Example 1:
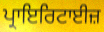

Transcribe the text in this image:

ਪ੍ਰਾਇਰਿਟਾਈਜ਼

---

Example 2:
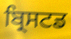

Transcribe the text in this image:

ਬ੍ਰਿਸਟਡ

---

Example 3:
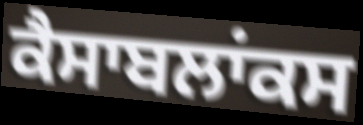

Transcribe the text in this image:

ਕੈਸਾਬਲਾਂਕਸ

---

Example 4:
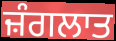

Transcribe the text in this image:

ਜ਼ੰਗਲਾਤ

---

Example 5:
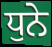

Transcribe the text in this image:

ਧੁਨੇ